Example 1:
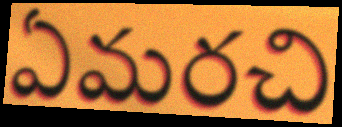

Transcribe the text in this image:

ఏమరచి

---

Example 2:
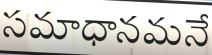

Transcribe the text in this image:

సమాధానమనే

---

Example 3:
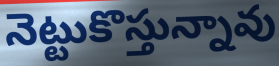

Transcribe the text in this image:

నెట్టుకొస్తున్నావు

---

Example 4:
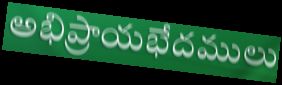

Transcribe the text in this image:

అభిప్రాయభేదములు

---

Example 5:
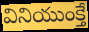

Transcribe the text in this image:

వినియుంక్తే